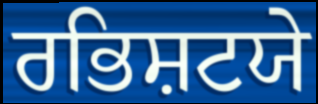
ਰਭਿਸ਼ਟਯੇ